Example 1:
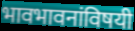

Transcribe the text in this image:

भावभावनांविषयी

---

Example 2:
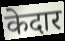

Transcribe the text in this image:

केदार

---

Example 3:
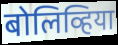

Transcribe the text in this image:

बोलिव्हिया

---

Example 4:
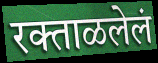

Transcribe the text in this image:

रक्ताळलेलं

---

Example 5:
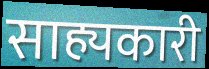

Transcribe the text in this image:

साह्यकारी